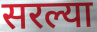
सरल्या